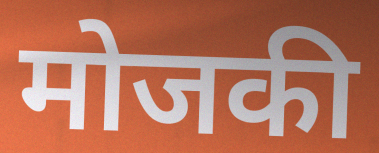
मोजकी